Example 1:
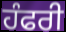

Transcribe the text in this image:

ਹੰਫਰੀ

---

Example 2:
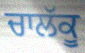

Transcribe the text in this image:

ਚਾਲੱਕੂ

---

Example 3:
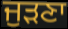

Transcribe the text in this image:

ਜੁੜਣਾ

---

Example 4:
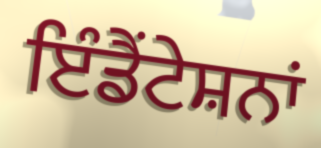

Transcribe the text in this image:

ਇੰਡੈਂਟੇਸ਼ਨਾਂ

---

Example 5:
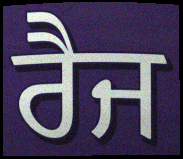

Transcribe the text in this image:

ਰੈਜ